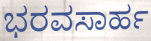
ಭರವಸಾರ್ಹ